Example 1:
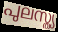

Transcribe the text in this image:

പുലസ്ത്യ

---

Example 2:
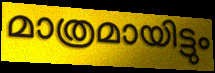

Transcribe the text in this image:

മാത്രമായിട്ടും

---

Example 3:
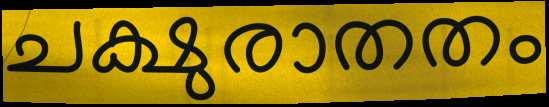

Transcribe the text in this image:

ചക്ഷുരാതതം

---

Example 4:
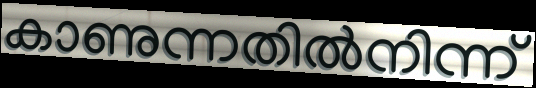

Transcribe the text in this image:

കാണുന്നതിൽനിന്ന്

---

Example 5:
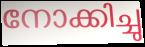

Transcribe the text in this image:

നോക്കിച്ചു